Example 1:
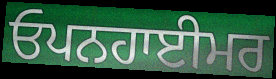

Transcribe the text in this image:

ਓਪਨਹਾਈਮਰ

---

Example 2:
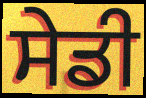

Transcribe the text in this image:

ਸੇਡੀ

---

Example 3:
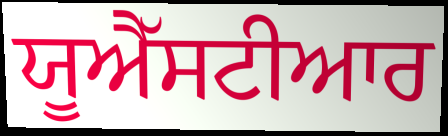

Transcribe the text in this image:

ਯੂਐੱਸਟੀਆਰ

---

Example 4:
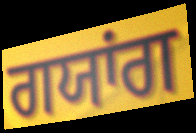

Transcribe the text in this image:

ਗਯਾਂਗ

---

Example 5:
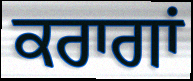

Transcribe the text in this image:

ਕਰਾਗਾਂ